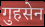
गुहसेन